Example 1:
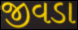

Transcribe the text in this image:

જીવડા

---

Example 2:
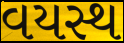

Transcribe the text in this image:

વયસ્થ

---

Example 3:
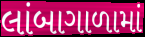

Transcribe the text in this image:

લાંબાગાળામાં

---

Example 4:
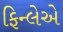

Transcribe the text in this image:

ફિન્લેએ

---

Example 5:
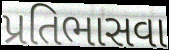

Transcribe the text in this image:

પ્રતિભાસવા